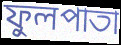
ফুলপাতা